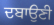
ਦਬਾਉਣੀ